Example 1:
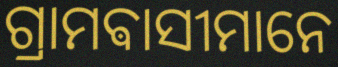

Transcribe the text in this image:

ଗ୍ରାମଵାସୀମାନେ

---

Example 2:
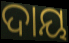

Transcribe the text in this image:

ଦାୟ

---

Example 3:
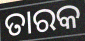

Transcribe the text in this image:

ତାରକ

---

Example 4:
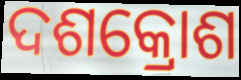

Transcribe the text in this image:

ଦଶକ୍ରୋଶ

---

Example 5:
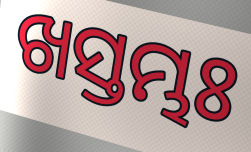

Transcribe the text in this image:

ଖସ୍ତମ୍ଭଃ